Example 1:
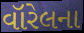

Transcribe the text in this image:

વૉરેલના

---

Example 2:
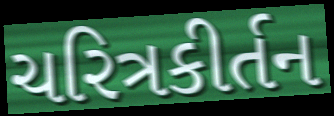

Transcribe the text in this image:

ચરિત્રકીર્તન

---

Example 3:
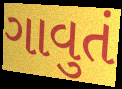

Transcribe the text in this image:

ગાવુતં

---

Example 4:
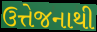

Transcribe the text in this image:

ઉત્તેજનાથી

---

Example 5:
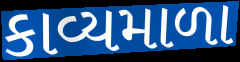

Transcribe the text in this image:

કાવ્યમાળા